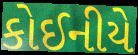
કોઈનીયે